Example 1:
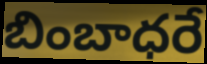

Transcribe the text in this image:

బింబాధరే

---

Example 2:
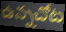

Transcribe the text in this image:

ఉన్నచోట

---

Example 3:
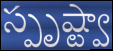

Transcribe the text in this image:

స్పృష్ట్వా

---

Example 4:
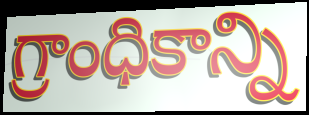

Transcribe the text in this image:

గ్రాంధికాన్ని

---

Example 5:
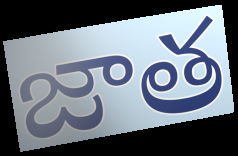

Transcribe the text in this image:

జాత